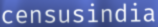
censusindia